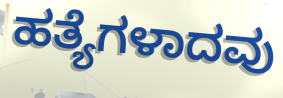
ಹತ್ಯೆಗಳಾದವು